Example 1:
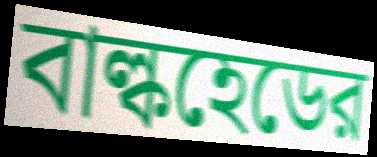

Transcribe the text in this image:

বাল্কহেডের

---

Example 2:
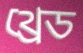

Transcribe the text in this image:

থ্রেড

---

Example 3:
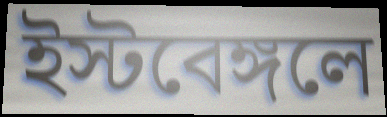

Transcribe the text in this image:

ইস্টবেঙ্গলে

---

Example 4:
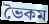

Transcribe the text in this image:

ভৈকম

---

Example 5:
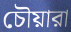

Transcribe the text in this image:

চৌয়ারা